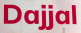
Dajjal